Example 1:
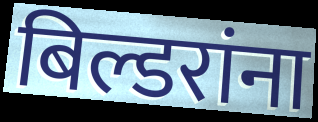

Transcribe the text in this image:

बिल्डरांना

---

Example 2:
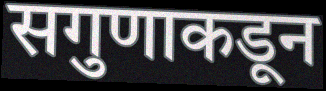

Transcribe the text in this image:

सगुणाकडून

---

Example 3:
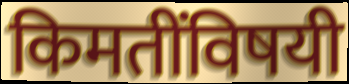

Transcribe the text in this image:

किमतींविषयी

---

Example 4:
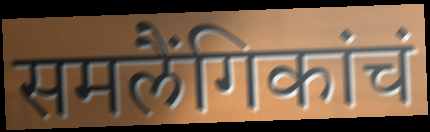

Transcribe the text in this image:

समलैंगिकांचं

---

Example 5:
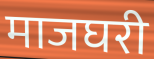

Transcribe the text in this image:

माजघरी